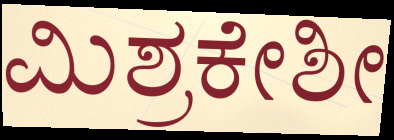
ಮಿಶ್ರಕೇಶೀ